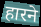
हारने